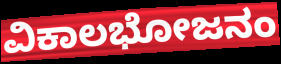
ವಿಕಾಲಭೋಜನಂ